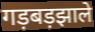
गड़बड़झाले